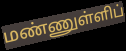
மண்ணுள்ளிப்